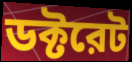
ডক্টরেট